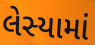
લેસ્યામાં